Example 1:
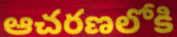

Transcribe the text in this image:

ఆచరణలోకి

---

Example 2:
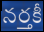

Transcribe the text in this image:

నర్తకీ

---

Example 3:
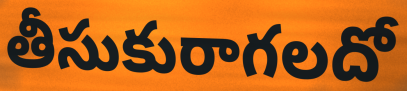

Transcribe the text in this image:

తీసుకురాగలదో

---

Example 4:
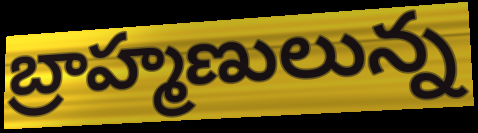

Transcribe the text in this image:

బ్రాహ్మణులున్న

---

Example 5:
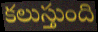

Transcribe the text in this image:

కలుస్తుంది